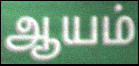
ஆயம்